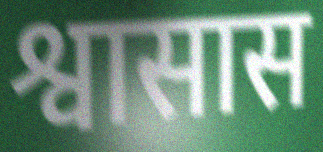
श्वासास